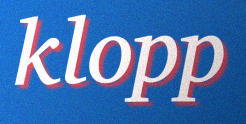
klopp